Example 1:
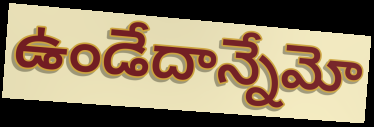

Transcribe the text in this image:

ఉండేదాన్నేమో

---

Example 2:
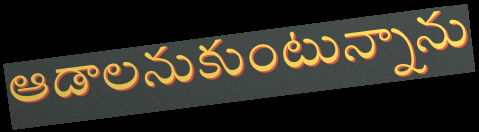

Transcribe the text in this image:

ఆడాలనుకుంటున్నాను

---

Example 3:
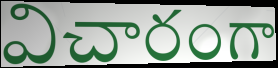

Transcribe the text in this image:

విచారంగా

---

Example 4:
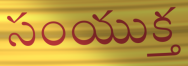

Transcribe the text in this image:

సంయుక్త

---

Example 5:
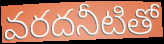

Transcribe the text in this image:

వరదనీటితో